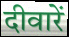
दीवारें